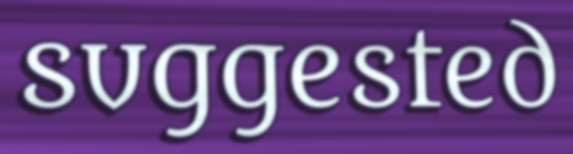
suggested